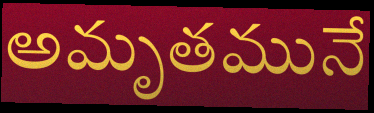
అమృతమునే